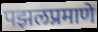
पझलप्रमाणे